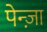
पेन्ज़ा